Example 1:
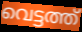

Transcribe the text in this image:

വെട്ടത്ത്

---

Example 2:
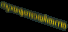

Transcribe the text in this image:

ന്യായമുണ്ടായിരുന്നു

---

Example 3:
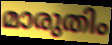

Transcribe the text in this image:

മാരുതിം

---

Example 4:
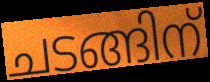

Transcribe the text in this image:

ചടങ്ങിന്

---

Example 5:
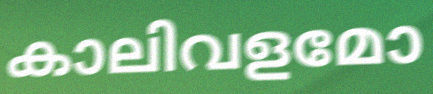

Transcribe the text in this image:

കാലിവളമോ